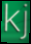
kj